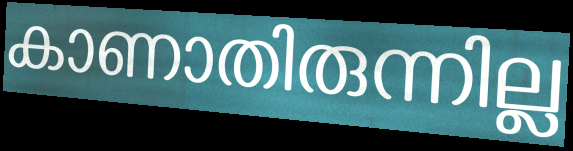
കാണാതിരുന്നില്ല